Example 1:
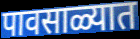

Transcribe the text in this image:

पावसाळ्यात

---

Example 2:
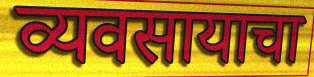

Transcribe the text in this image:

व्यवसायाचा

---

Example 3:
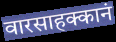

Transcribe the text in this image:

वारसाहक्कानं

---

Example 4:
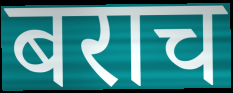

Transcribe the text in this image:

बराच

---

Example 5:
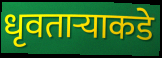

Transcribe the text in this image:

धृवतार्‍याकडे